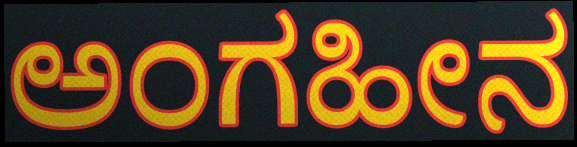
ಅಂಗಹೀನ